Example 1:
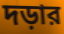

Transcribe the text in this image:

দড়ার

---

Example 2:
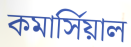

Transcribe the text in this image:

কমার্সিয়াল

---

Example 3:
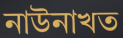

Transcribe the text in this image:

নাউনাখত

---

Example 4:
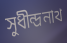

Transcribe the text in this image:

সুধীন্দ্রনাথ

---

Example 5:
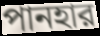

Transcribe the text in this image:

পানহার